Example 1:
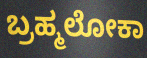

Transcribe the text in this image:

ಬ್ರಹ್ಮಲೋಕಾ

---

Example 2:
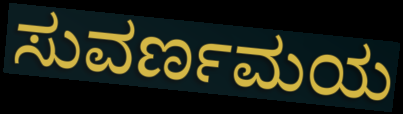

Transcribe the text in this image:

ಸುವರ್ಣಮಯ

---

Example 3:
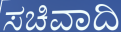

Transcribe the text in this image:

ಸಚಿವಾದಿ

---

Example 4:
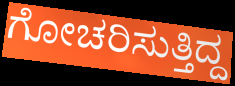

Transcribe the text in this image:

ಗೋಚರಿಸುತ್ತಿದ್ದ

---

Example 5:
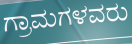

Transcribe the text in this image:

ಗ್ರಾಮಗಳವರು